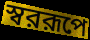
স্বররূপে